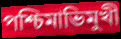
পশ্চিমাভিমুখী